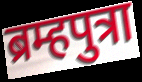
ब्रम्हपुत्रा